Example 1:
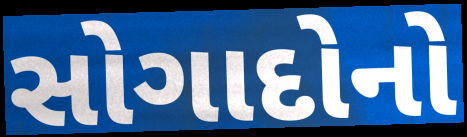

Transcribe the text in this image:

સોગાદોનો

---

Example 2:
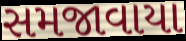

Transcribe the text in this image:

સમજાવાયા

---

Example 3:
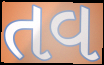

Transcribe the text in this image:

તવ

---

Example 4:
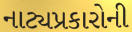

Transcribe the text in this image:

નાટ્યપ્રકારોની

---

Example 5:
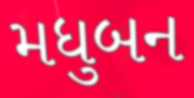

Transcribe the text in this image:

મધુબન